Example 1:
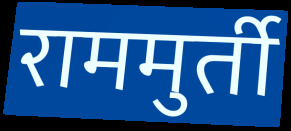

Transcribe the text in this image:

राममुर्ती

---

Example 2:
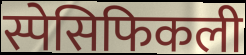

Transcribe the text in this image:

स्पेसिफिकली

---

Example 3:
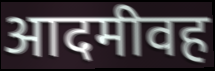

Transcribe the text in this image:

आदमीवह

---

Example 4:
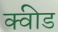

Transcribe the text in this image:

क्वीड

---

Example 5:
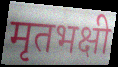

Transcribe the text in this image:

मृतभक्षी